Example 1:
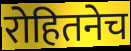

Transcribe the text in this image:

रोहितनेच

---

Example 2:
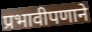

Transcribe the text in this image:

प्रभावीपणाने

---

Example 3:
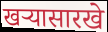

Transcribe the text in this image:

खऱ्यासारखे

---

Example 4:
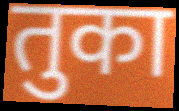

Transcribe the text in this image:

तुका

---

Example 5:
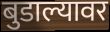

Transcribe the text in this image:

बुडाल्यावर